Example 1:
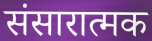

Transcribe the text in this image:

संसारात्मक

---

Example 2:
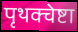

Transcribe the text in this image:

पृथक्चेष्टा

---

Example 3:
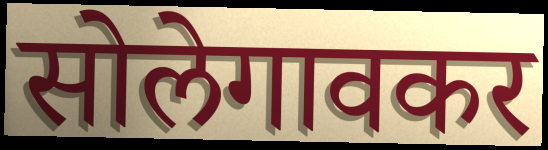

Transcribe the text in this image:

सोलेगावकर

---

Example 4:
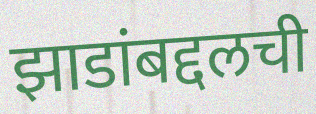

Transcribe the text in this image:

झाडांबद्दलची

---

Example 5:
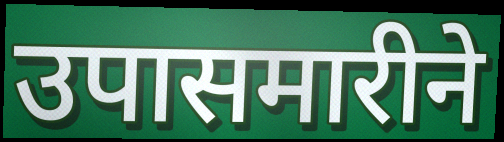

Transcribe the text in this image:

उपासमारीने